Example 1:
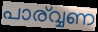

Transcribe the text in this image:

പാര്വ്വണ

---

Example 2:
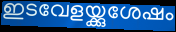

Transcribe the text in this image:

ഇടവേളയ്ക്കുശേഷം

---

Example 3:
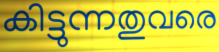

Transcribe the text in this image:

കിട്ടുന്നതുവരെ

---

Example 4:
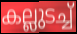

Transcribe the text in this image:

കല്ലുടച്ച്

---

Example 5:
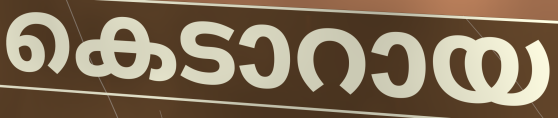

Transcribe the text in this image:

കെടാറായ